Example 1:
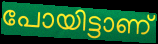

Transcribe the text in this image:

പോയിട്ടാണ്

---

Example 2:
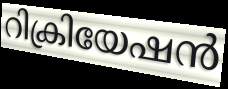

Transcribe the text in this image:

റിക്രിയേഷൻ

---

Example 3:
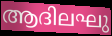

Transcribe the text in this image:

ആദിലഘു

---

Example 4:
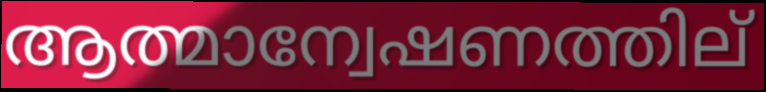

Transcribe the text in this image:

ആത്മാന്വേഷണത്തില്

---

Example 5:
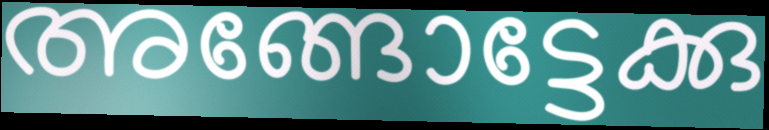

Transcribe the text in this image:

അങ്ങോട്ടേക്കു